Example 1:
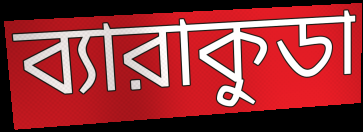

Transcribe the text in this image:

ব্যারাকুডা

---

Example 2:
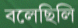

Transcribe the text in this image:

বলেছিলি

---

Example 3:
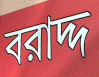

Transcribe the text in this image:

বরাদ্দ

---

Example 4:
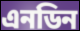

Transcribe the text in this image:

এনডিন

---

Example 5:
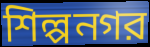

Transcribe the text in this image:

শিল্পনগর